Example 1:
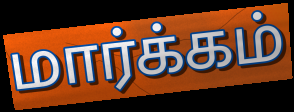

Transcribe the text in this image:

மார்க்கம்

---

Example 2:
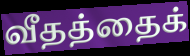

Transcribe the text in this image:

வீதத்தைக்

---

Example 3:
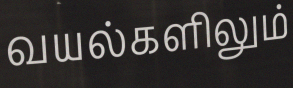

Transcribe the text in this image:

வயல்களிலும்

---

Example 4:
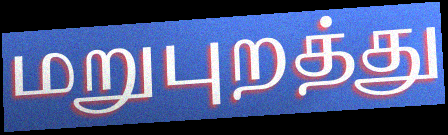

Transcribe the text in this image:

மறுபுறத்து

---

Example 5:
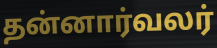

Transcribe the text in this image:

தன்னார்வலர்